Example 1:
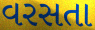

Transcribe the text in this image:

વરસતા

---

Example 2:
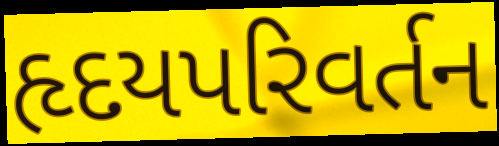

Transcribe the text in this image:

હૃદયપરિવર્તન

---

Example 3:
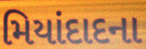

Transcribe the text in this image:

મિયાંદાદના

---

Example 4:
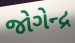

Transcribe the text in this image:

જોગેન્દ્ર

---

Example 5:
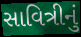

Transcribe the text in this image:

સાવિત્રીનું